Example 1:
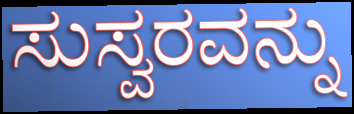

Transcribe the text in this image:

ಸುಸ್ವರವನ್ನು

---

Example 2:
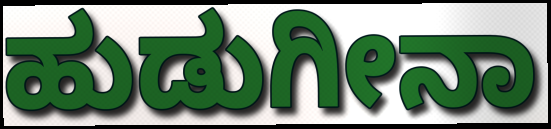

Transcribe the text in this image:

ಹುಡುಗೀನಾ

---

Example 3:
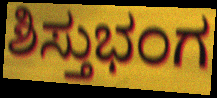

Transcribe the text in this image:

ಶಿಸ್ತುಭಂಗ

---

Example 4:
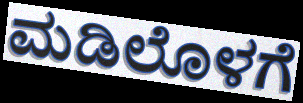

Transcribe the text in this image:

ಮಡಿಲೊಳಗೆ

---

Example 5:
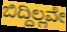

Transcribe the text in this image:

ಬಿದ್ದಿಲ್ಲವೇ